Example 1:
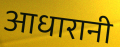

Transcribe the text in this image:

आधारानी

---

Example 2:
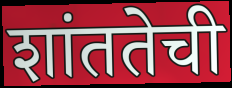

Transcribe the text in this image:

शांततेची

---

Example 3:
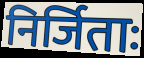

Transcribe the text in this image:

निर्जिताः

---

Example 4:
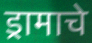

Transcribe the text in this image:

ड्रामाचे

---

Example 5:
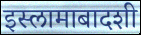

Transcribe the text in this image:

इस्लामाबादशी